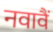
नवावैं